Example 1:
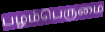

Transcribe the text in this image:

பழம்பெருமை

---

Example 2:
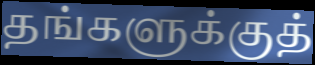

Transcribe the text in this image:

தங்களுக்குத்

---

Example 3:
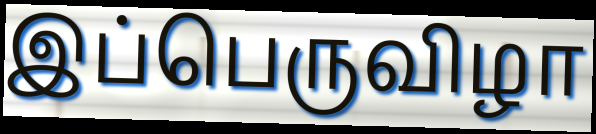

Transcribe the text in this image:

இப்பெருவிழா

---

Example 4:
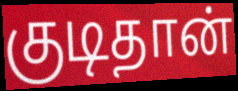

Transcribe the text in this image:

குடிதான்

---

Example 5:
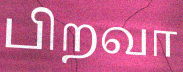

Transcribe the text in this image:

பிறவா